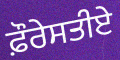
ਫ਼ੌਰੇਸਤੀਏ